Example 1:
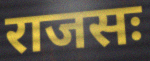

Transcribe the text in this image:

राजसः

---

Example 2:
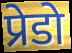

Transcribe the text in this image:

प्रेडो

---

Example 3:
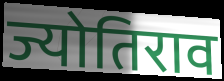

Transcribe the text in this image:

ज्योतिराव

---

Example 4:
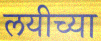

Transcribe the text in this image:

लयीच्या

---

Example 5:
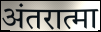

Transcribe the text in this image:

अंतरात्मा